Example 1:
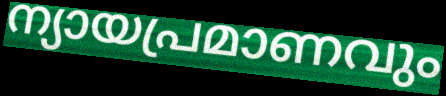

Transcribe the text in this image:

ന്യായപ്രമാണവും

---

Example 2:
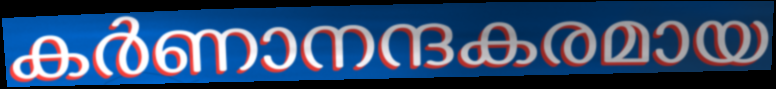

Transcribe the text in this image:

കർണാനന്ദകരമായ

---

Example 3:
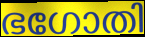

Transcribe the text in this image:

ഭഗോതി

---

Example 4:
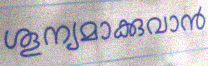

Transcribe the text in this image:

ശൂന്യമാക്കുവാൻ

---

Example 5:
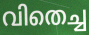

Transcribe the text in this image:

വിതെച്ച